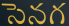
సెనగ